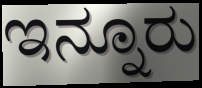
ಇನ್ನೂರು